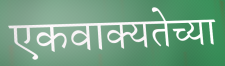
एकवाक्यतेच्या